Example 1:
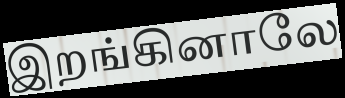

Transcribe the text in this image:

இறங்கினாலே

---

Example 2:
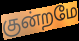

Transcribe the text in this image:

குன்றமே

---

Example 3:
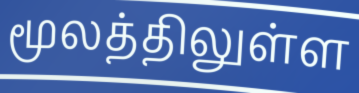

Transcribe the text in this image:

மூலத்திலுள்ள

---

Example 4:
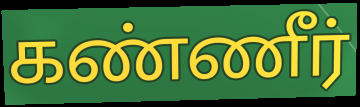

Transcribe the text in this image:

கண்ணீர்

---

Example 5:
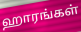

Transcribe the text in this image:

ஹாரங்கள்